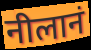
नीलानं